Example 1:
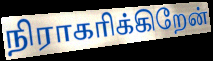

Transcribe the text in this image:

நிராகரிக்கிறேன்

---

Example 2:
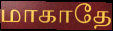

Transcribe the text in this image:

மாகாதே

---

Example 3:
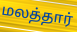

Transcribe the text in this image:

மலத்தார்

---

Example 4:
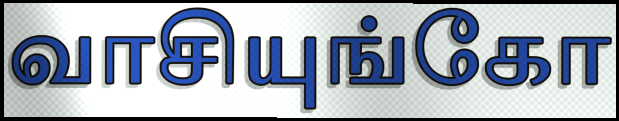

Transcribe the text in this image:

வாசியுங்கோ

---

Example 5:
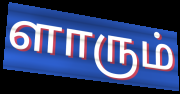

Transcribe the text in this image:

ளாரும்